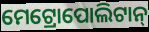
ମେଟ୍ରୋପୋଲିଟାନ୍